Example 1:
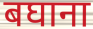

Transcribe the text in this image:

बघाना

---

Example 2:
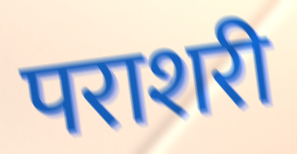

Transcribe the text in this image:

पराशरी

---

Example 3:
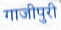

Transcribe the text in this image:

गाजीपुरी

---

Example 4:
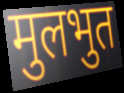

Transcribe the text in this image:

मुलभुत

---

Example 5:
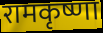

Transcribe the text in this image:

रामकृष्णा